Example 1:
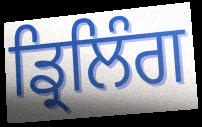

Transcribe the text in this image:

ਡ੍ਰਿਲਿੰਗ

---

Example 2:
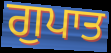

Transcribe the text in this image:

ਗੁਪਾਤ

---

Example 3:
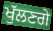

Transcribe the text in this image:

ਖੁੱਲਣਗੇ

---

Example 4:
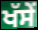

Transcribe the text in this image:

ਖੱਸੇਂ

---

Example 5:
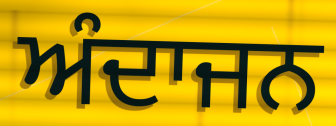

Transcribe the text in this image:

ਅੰਦਾਜਨ